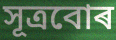
সূত্ৰবোৰ